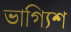
ভাগ্যিশ